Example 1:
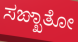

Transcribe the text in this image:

ಸಙ್ಖಾತೋ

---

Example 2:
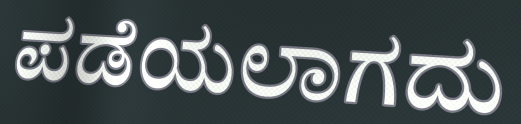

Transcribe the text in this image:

ಪಡೆಯಲಾಗದು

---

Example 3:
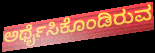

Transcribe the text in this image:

ಅರ್ಥೈಸಿಕೊಂಡಿರುವ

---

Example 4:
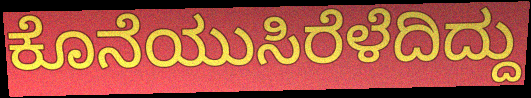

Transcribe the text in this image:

ಕೊನೆಯುಸಿರೆಳೆದಿದ್ದು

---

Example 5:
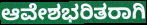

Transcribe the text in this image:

ಆವೇಶಭರಿತರಾಗಿ